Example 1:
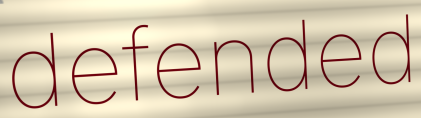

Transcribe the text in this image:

defended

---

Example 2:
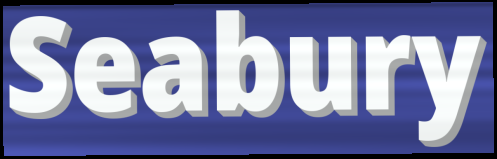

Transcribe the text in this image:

Seabury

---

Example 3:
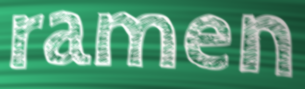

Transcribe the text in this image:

ramen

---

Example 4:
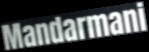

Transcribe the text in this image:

Mandarmani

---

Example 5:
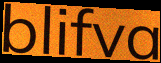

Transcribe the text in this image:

blifva